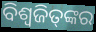
ବିଶ୍ଵଜିତ୍‌ଙ୍କର